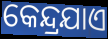
କେନ୍ଦ୍ରଯାଏ